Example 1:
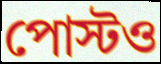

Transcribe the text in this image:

পোস্টও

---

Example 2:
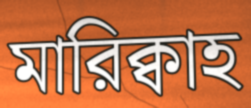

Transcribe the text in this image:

মারিক্বাহ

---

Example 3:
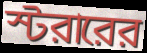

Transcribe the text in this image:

স্টরারের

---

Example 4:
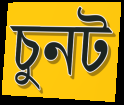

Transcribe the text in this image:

চুনট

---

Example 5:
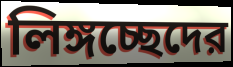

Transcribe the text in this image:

লিঙ্গচ্ছেদের